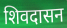
शिवदासन